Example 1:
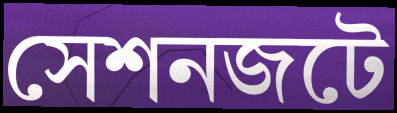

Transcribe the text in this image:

সেশনজটে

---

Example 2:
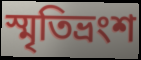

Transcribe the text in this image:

স্মৃতিভ্রংশ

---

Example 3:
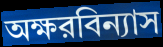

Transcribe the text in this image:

অক্ষরবিন্যাস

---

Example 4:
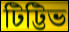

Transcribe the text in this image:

টিট্টিভ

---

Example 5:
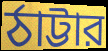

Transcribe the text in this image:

ঠাট্টার